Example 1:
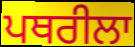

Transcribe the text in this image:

ਪਥਰੀਲਾ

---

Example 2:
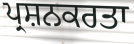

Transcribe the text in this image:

ਪ੍ਰਸ਼ਨਕਰਤਾ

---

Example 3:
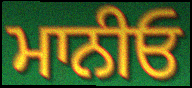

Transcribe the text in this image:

ਮਾਨੀਓ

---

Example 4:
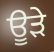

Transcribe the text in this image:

ਊੜੇ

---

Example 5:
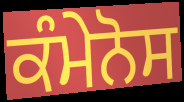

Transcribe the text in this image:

ਕੰਮੇਨੋਸ